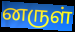
னருள்